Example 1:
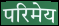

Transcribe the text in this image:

परिमेय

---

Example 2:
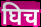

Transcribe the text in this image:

घिच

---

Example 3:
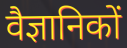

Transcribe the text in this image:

वैज्ञानिकों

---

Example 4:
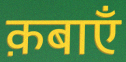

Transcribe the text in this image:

क़बाएँ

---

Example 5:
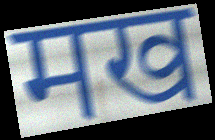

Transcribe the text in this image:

मख